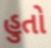
હુતો